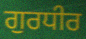
ਗੁਰਧੀਰ